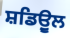
ਸ਼ਡਿਉੂਲ